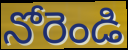
నోరెండి